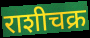
राशीचक्र